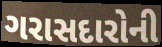
ગરાસદારોની